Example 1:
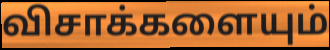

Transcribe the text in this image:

விசாக்களையும்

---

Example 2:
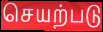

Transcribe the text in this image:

செயற்படு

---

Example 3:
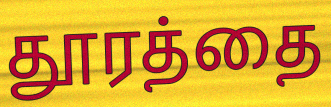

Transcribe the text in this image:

தூரத்தை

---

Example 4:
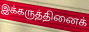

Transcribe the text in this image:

இக்கருத்தினைக்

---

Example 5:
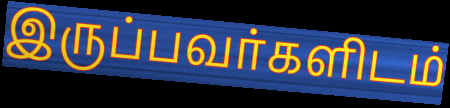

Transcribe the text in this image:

இருப்பவர்களிடம்